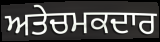
ਅਤੇਚਮਕਦਾਰ